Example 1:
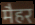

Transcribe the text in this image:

मैहर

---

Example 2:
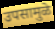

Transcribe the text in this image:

उपसामुळे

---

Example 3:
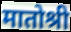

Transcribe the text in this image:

मातोश्री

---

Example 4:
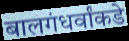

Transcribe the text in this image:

बालगंधर्वांकडे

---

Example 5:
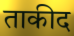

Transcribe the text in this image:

ताकीद